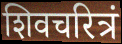
शिवचरित्रं